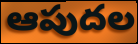
ఆపుదల